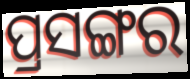
ପ୍ରସଙ୍ଗର